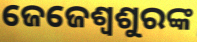
ଜେଜେଶ୍ୱଶୁରଙ୍କ